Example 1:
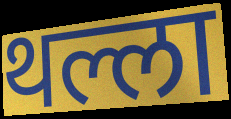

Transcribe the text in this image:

थल्ला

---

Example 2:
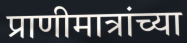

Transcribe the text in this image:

प्राणीमात्रांच्या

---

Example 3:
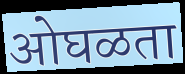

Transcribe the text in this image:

ओघळता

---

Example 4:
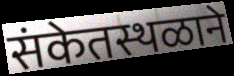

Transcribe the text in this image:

संकेतस्थळाने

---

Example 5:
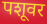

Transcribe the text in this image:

पशूवर